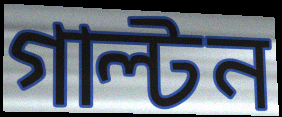
গাল্টন